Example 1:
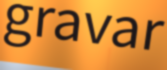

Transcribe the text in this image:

gravar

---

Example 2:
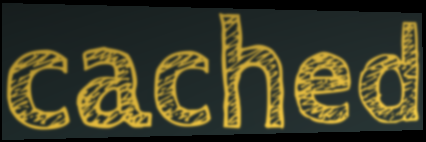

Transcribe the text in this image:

cached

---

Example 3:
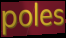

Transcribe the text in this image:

poles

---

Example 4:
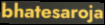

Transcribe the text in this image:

bhatesaroja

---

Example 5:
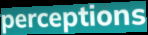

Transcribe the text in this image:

perceptions